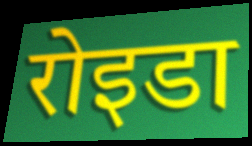
रोइडा